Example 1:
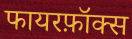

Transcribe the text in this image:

फायरफ़ॉक्स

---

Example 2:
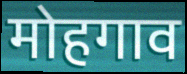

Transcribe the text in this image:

मोहगाव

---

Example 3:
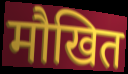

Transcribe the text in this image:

मौखित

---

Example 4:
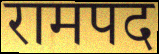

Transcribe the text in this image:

रामपद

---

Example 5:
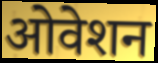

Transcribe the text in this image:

ओवेशन